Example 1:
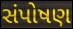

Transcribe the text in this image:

સંપોષણ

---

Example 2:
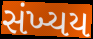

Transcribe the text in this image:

સંખ્યય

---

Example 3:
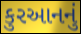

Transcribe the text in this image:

કુરઆનનું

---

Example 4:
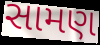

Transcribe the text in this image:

સામણ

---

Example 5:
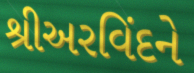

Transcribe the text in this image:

શ્રીઅરવિંદને